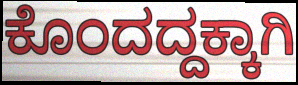
ಕೊಂದದ್ದಕ್ಕಾಗಿ